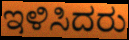
ಇಳಿಸಿದರು